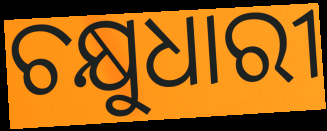
ଚକ୍ଷୁଧାରୀ